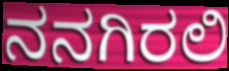
ನನಗಿರಲಿ